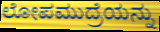
ಲೋಪಮುದ್ರೆಯನ್ನು